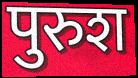
पुरुश